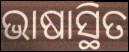
ଭାଷାସ୍ଥିତ